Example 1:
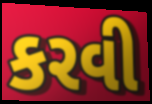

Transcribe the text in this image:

કરવી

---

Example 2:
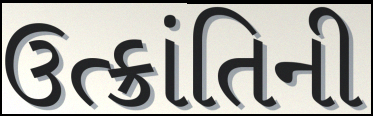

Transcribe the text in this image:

ઉત્ક્રાંતિની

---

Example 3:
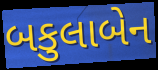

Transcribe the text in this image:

બકુલાબેન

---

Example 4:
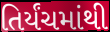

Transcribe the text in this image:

તિર્યંચમાંથી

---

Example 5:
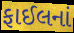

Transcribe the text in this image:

ફાઈલનાં